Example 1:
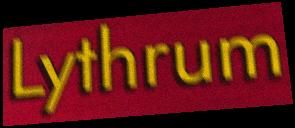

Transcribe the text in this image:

Lythrum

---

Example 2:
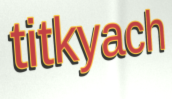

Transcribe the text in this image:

titkyach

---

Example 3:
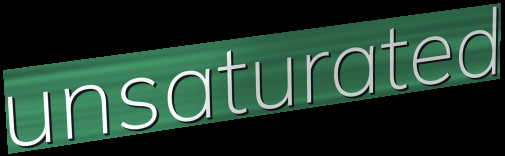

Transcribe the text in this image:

unsaturated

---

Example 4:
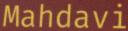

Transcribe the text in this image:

Mahdavi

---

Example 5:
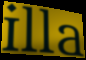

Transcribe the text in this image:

illa